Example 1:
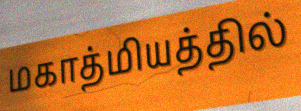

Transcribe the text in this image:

மகாத்மியத்தில்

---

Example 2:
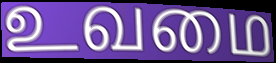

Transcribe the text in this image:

உவமை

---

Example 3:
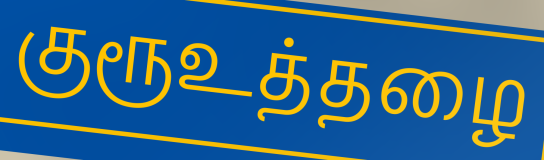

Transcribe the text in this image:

குரூஉத்தழை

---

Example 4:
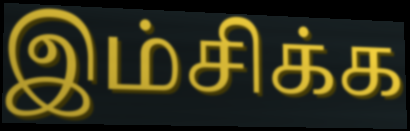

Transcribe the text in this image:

இம்சிக்க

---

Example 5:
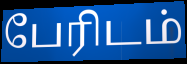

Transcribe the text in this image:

பேரிடம்